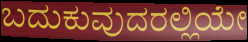
ಬದುಕುವುದರಲ್ಲಿಯೇ